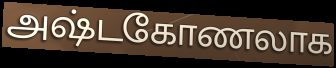
அஷ்டகோணலாக